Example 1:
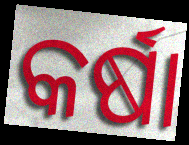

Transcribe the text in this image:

କର୍ଷା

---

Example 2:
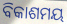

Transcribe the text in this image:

ବିକାଶମୟ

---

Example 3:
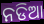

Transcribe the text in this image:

ନଡିଆ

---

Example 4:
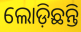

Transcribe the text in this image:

ଲୋଡ଼ିଛନ୍ତି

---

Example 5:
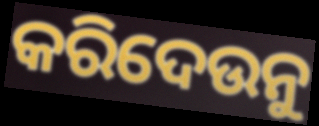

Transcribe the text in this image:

କରିଦେଉନୁ